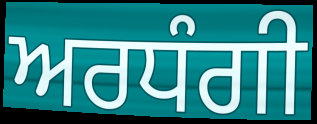
ਅਰਧੰਗੀ